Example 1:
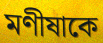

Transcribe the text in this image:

মণীষাকে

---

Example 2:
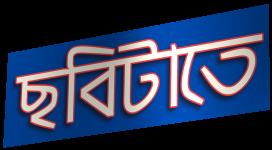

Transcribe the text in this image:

ছবিটাতে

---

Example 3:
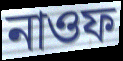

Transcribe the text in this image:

নাওফ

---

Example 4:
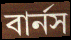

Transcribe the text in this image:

বার্নস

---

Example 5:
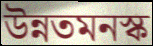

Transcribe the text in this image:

উন্নতমনস্ক